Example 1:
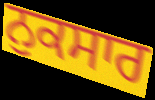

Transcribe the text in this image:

ਨੁਕਸਾਰ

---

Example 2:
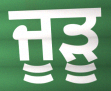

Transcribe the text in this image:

ਜੂੜੂ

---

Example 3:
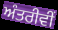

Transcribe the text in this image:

ਅੰਤਰੀਵੀਂ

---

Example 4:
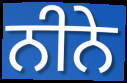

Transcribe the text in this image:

ਨੀਨੇ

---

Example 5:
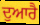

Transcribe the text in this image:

ਦੁਆਰੈ